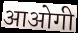
आओगी